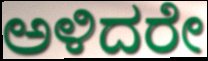
ಅಳಿದರೇ